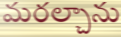
మరల్చాను